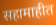
सहामाहीत